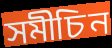
সমীচিন